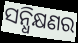
ସନ୍ଧିକ୍ଷଣର